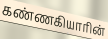
கண்ணகியாரின்